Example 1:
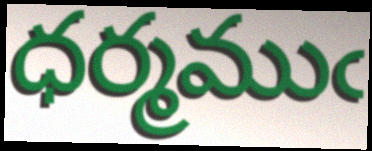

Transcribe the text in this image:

ధర్మముఁ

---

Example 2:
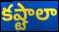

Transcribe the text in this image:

కష్టాలా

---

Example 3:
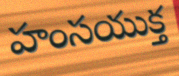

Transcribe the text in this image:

హంసయుక్త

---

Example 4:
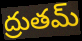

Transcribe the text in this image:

ద్రుతమ్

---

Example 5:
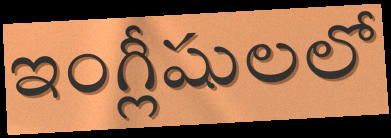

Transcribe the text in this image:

ఇంగ్లీషులలో